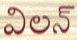
విలన్